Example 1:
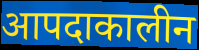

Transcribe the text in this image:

आपदाकालीन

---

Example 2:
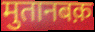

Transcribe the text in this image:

मुतानबक़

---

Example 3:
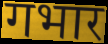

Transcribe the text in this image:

गभार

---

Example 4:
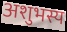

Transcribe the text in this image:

अशुभस्य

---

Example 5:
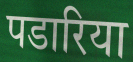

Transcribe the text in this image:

पडारिया